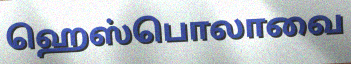
ஹெஸ்பொலாவை